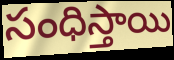
సంధిస్తాయి